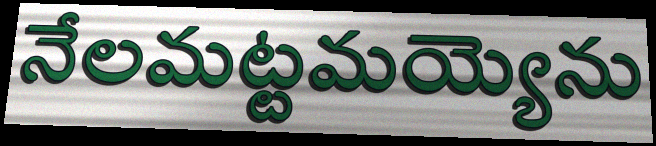
నేలమట్టమయ్యెను